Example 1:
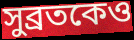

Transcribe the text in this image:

সুব্রতকেও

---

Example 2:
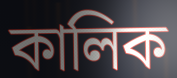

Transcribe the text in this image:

কালিক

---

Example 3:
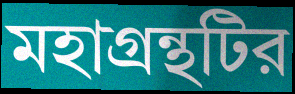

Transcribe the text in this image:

মহাগ্রন্থটির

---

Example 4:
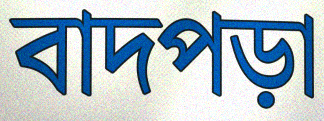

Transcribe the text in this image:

বাদপড়া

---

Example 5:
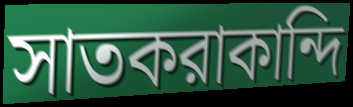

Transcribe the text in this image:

সাতকরাকান্দি